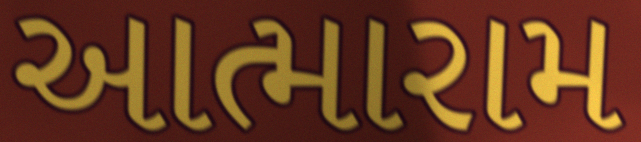
આત્મારામ